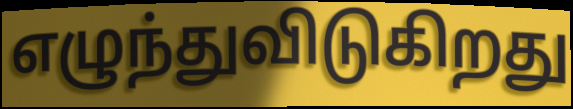
எழுந்துவிடுகிறது